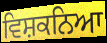
ਵਿਸ਼ਕਨਿਆ